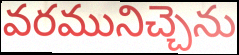
వరమునిచ్చెను